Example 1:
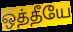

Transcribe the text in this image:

ஒத்தீயே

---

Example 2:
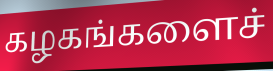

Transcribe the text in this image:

கழகங்களைச்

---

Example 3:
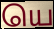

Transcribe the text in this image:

யெ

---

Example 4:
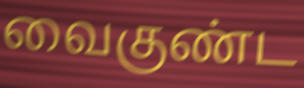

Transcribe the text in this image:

வைகுண்ட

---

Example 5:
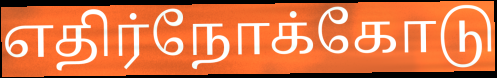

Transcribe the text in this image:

எதிர்நோக்கோடு